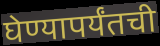
घेण्यापर्यंतची